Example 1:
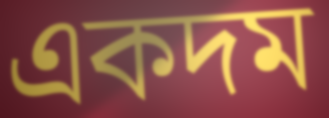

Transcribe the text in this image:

একদম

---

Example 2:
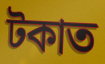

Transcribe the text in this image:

টকাত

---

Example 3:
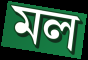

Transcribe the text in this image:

মল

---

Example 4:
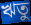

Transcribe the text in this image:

ঋতু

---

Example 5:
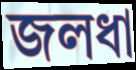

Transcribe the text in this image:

জলধা